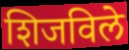
शिजविले